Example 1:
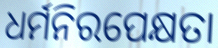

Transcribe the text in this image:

ଧର୍ମନିରପେକ୍ଷତା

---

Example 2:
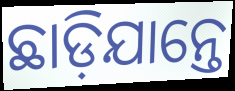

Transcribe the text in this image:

ଛାଡ଼ିଯାନ୍ତେ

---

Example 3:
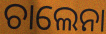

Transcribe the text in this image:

ଚାଲେନା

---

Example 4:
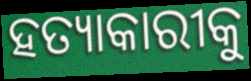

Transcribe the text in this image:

ହତ୍ୟାକାରୀକୁ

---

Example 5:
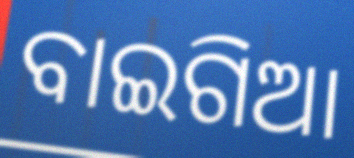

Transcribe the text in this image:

ବାଇଗିଆ